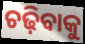
ଚଢ଼ିବାକୁ